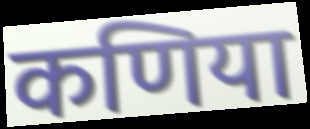
कणिया